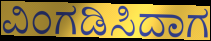
ವಿಂಗಡಿಸಿದಾಗ